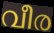
വീര